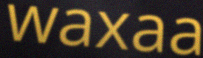
waxaa